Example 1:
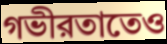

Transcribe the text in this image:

গভীরতাতেও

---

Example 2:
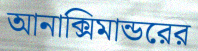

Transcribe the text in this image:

আনাক্সিমান্ডরের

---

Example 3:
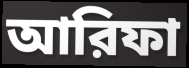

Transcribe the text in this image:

আরিফা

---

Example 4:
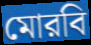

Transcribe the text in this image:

মোরবি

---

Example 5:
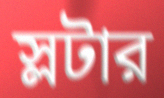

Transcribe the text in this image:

স্লটার